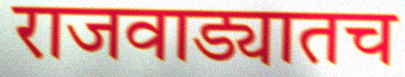
राजवाड्यातच